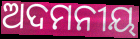
ଅଦମନୀୟ